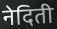
नेदिती